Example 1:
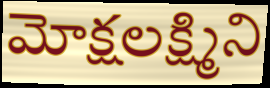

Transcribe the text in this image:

మోక్షలక్ష్మిని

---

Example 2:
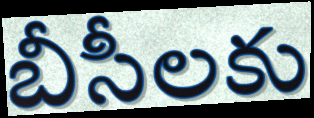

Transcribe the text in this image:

బీసీలకు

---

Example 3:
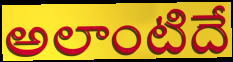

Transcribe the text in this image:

అలాంటిదే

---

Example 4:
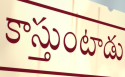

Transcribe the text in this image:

కాస్తుంటాడు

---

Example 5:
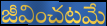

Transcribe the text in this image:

జీవించటమే